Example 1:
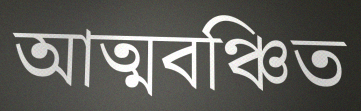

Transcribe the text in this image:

আত্মবঞ্চিত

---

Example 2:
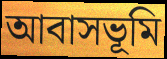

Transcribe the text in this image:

আবাসভূমি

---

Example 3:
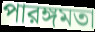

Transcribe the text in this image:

পারঙ্গমতা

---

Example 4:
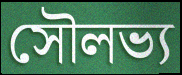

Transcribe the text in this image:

সৌলভ্য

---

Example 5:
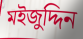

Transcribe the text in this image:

মইজুদ্দিন